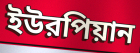
ইউরপিয়ান